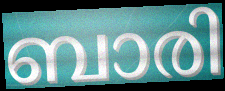
ബാരി